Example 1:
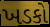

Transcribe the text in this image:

ખડકો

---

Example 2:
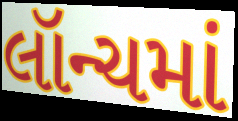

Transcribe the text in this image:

લૉન્ચમાં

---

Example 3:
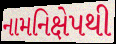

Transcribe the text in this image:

નામનિક્ષેપથી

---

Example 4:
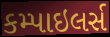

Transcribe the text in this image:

કમ્પાઇલર્સ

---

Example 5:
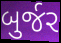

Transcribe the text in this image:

બુર્જર